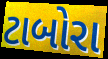
ટાબોરા